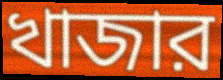
খাজার